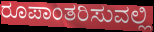
ರೂಪಾಂತರಿಸುವಲ್ಲಿ